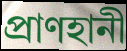
প্রাণহানী